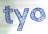
tyo